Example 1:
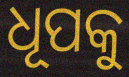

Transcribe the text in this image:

ଧୂପକୁ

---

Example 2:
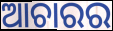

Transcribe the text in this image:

ଆଚାରର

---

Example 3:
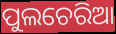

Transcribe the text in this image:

ପୁଲଚେରିଆ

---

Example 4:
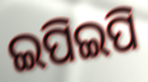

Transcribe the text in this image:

ଇପିଇପି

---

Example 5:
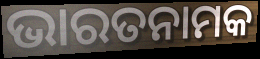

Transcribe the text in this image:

ଭାରତନାମକ